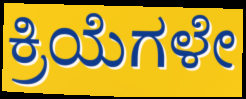
ಕ್ರಿಯೆಗಳೇ